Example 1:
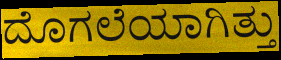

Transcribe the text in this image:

ದೊಗಲೆಯಾಗಿತ್ತು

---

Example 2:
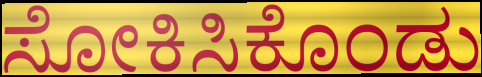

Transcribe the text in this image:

ಸೋಕಿಸಿಕೊಂಡು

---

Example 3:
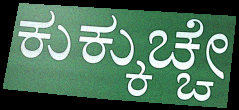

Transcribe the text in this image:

ಕುಕ್ಕುಚ್ಚೇ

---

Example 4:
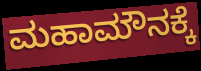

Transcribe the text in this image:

ಮಹಾಮೌನಕ್ಕೆ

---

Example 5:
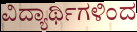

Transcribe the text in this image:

ವಿದ್ಯಾರ್ಥಿಗಳಿಂದ